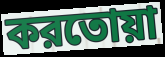
করতোয়া